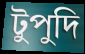
টুপুদি